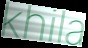
khila